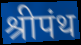
श्रीपंथ